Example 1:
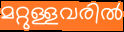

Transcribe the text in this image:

മറ്റുള്ളവരിൽ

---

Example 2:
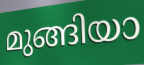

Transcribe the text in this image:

മുങ്ങിയാ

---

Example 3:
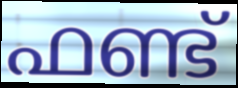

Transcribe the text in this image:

ഫണ്ട്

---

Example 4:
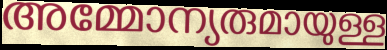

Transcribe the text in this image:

അമ്മോന്യരുമായുള്ള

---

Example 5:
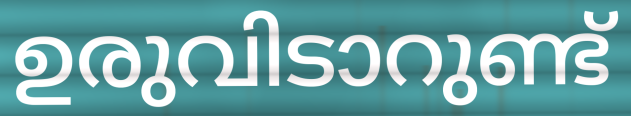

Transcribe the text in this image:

ഉരുവിടാറുണ്ട്